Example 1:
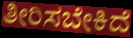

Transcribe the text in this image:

ತೀರಿಸಬೇಕಿದೆ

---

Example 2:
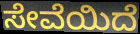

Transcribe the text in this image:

ಸೇವೆಯಿದೆ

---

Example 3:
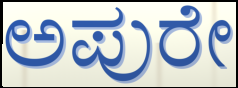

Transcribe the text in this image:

ಅಪುರೇ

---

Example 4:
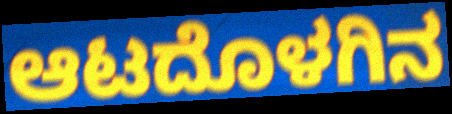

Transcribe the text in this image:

ಆಟದೊಳಗಿನ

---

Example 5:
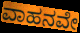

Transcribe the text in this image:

ವಾಹನವೇ